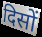
दिसों